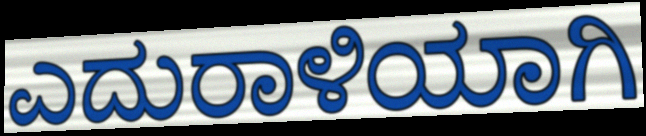
ಎದುರಾಳಿಯಾಗಿ